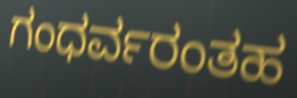
ಗಂಧರ್ವರಂತಹ